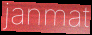
janmat